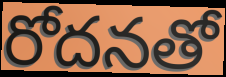
రోదనతో